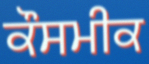
ਕੌਸਮੀਕ